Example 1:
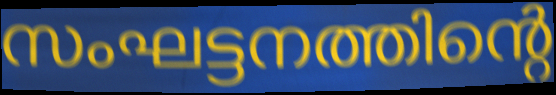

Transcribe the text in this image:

സംഘട്ടനത്തിന്റെ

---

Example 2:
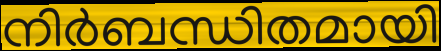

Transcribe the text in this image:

നിർബന്ധിതമായി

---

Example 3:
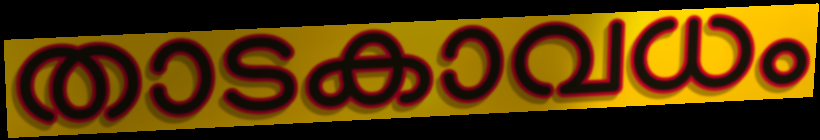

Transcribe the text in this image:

താടകാവധം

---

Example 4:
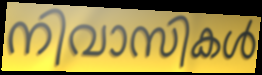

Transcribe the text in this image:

നിവാസികൾ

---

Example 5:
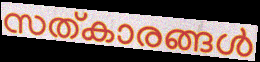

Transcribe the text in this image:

സത്കാരങ്ങൾ